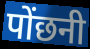
पोंछनी